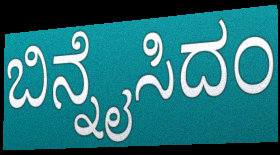
ಬಿನ್ನೈಸಿದಂ